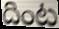
దింట